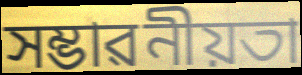
সম্ভাৱনীয়তা